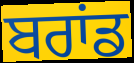
ਬਰਾਂਡ